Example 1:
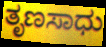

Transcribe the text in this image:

ತೃಣಸಾಧು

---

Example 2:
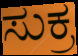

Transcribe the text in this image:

ಸುಕ್ರ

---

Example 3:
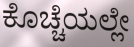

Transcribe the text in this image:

ಕೊಚ್ಚೆಯಲ್ಲೇ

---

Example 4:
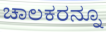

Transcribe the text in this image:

ಚಾಲಕರನ್ನೂ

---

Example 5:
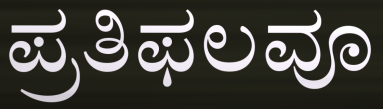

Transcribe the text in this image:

ಪ್ರತಿಫಲವೂ